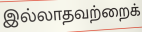
இல்லாதவற்றைக்